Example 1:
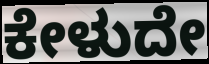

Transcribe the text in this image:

ಕೇಳುದೇ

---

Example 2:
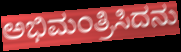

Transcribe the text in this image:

ಅಭಿಮಂತ್ರಿಸಿದನು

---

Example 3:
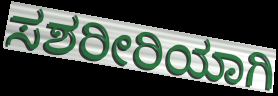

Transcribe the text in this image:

ಸಶರೀರಿಯಾಗಿ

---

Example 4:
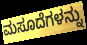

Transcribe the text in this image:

ಮಸೂದೆಗಳನ್ನು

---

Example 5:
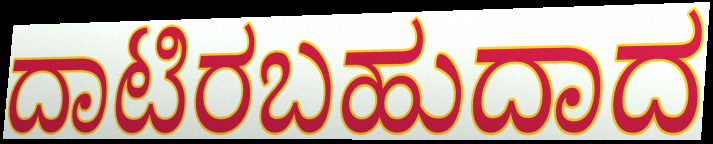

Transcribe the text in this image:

ದಾಟಿರಬಹುದಾದ